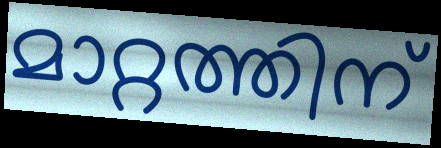
മാറ്റത്തിന്